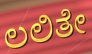
ಲಲಿತೇ